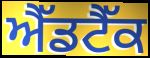
ਐੱਡਟੈੱਕ